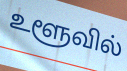
உளூவில்